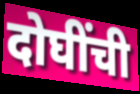
दोघींची